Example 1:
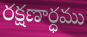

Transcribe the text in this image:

రక్షణార్ధము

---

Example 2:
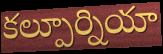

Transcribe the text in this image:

కల్పూర్నియా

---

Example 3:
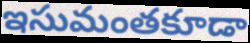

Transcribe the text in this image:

ఇసుమంతకూడా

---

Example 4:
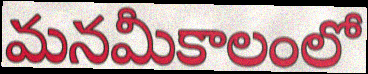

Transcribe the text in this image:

మనమీకాలంలో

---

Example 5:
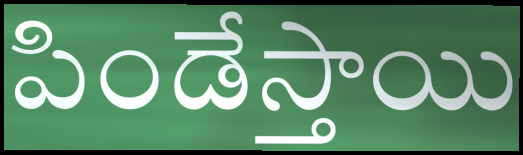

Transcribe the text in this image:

పిండేస్తాయి